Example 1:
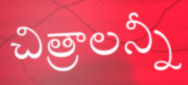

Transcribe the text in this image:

చిత్రాలన్నీ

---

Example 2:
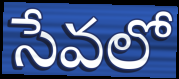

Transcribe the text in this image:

సేవలో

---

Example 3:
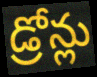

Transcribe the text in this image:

డ్రోన్లు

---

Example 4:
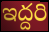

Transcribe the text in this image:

ఇద్దరి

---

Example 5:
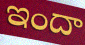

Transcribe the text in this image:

ఇందా